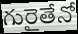
గురైతేనో